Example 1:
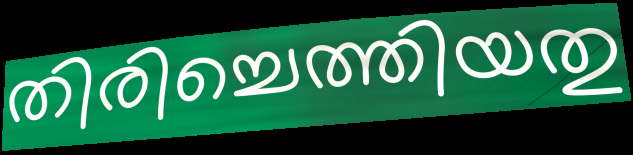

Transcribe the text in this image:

തിരിച്ചെത്തിയതു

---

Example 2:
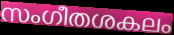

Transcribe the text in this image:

സംഗീതശകലം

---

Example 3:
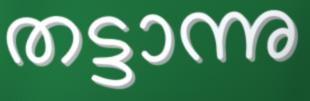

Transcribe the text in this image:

തട്ടാന്നു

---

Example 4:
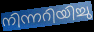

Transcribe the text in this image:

നിന്നറിയിച്ചു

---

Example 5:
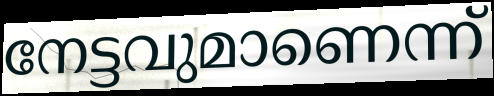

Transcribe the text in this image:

നേട്ടവുമാണെന്ന്